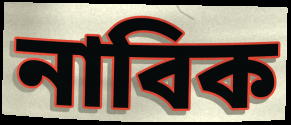
নাবিক